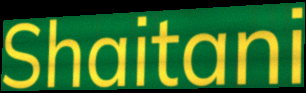
Shaitani